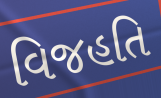
વિજહતિ